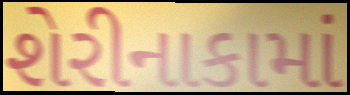
શેરીનાકામાં